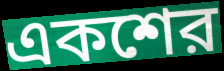
একশের